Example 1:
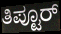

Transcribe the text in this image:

ತಿಪ್ಟೂರ್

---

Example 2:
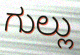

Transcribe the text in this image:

ಗುಲ್ಲು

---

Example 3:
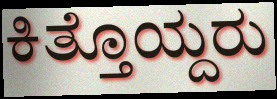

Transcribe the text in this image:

ಕಿತ್ತೊಯ್ದರು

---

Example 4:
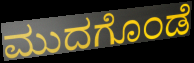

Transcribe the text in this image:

ಮುದಗೊಂಡೆ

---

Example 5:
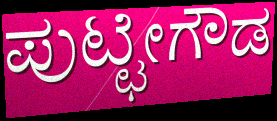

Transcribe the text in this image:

ಪುಟ್ಟೇಗೌಡ